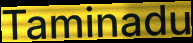
Taminadu